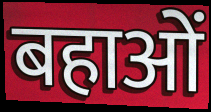
बहाओं